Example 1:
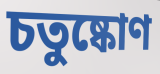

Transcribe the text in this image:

চতুষ্কোণ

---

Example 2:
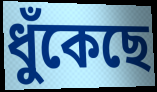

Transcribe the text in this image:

ধুঁকেছে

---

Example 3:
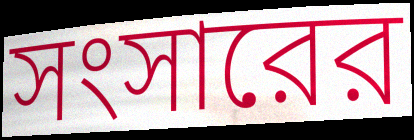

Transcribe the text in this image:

সংসারের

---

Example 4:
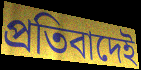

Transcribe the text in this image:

প্রতিবাদেই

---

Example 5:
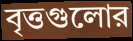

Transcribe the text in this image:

বৃত্তগুলোর